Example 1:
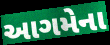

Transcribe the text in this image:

આગમેના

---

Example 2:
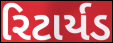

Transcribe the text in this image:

રિટાર્યડ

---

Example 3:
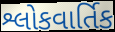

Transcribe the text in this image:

શ્લોકવાર્તિક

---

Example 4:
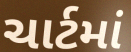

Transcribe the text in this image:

ચાર્ટમાં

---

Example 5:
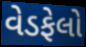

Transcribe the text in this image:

વેડફેલો